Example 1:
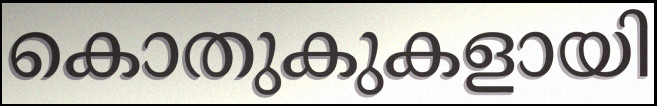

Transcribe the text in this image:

കൊതുകുകളായി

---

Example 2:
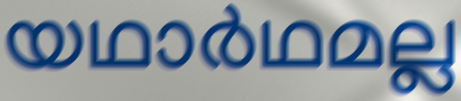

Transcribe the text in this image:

യഥാർഥമല്ല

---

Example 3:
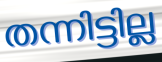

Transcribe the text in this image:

തന്നിട്ടില്ല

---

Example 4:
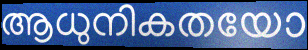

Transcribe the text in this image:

ആധുനികതയോ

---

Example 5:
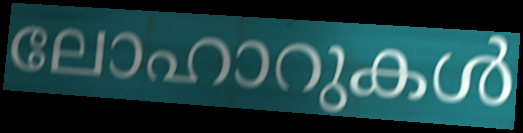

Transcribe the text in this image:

ലോഹാറുകൾ